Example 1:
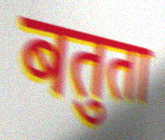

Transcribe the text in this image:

बतुता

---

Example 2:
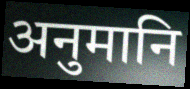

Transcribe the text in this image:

अनुमानि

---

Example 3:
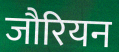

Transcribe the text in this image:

जौरियन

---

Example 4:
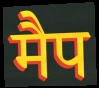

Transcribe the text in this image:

मैप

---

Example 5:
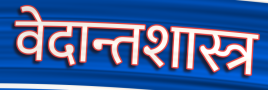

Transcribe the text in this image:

वेदान्तशास्त्र